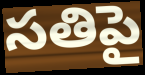
సతిపై